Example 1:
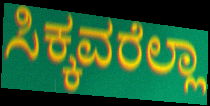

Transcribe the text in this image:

ಸಿಕ್ಕವರೆಲ್ಲಾ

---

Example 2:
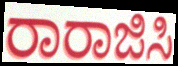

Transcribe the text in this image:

ರಾರಾಜಿಸಿ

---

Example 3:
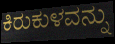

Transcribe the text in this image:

ಕಿರುಕುಳವನ್ನು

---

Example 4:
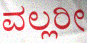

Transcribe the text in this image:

ವಲ್ಲರೀ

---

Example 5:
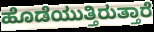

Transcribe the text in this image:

ಹೊಡೆಯುತ್ತಿರುತ್ತಾರೆ